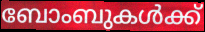
ബോംബുകൾക്ക്